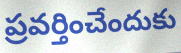
ప్రవర్తించేందుకు